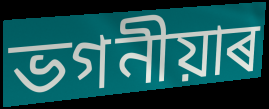
ভগনীয়াৰ